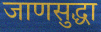
जाणसुद्धा